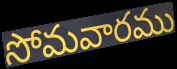
సోమవారము